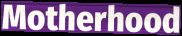
Motherhood